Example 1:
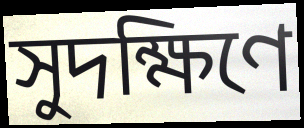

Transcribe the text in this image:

সুদক্ষিণে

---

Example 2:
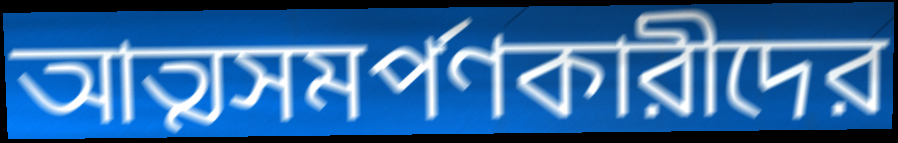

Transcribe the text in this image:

আত্মসমর্পণকারীদের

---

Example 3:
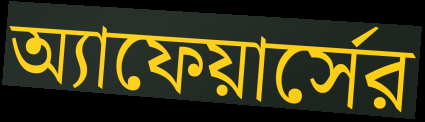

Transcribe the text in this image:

অ্যাফেয়ার্সের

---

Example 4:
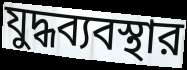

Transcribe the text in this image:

যুদ্ধব্যবস্থার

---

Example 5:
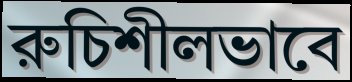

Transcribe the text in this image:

রুচিশীলভাবে